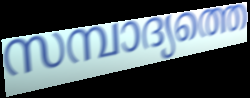
സമ്പാദ്യത്തെ